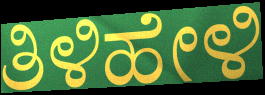
ತಿಳಿಹೇಳಿ